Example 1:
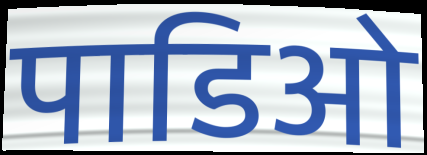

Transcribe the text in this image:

पाडिओ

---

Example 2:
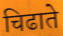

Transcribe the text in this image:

चिढाते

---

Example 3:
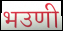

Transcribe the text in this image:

भउणी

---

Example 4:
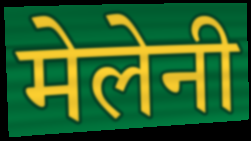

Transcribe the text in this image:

मेलेनी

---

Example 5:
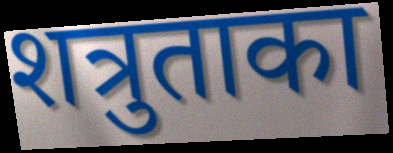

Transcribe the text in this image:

शत्रुताका